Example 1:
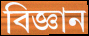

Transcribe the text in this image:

বিজ্ঞান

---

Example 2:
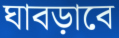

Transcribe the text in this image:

ঘাবড়াবে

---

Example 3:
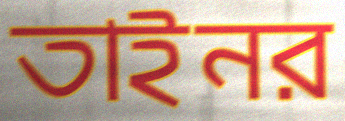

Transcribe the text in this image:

তাইনর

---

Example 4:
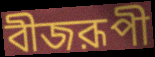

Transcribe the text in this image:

বীজরূপী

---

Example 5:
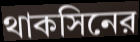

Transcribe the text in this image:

থাকসিনের